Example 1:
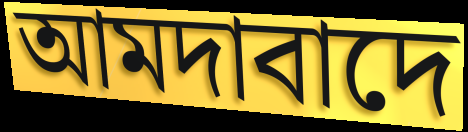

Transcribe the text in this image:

আমদাবাদে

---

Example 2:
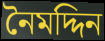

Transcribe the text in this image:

নৈমদ্দিন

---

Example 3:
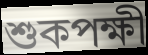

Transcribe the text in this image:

শুকপক্ষী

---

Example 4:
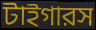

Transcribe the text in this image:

টাইগারস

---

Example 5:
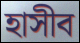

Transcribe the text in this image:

হাসীব